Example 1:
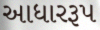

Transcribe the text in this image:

આધારરૂપ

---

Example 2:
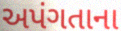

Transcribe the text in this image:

અપંગતાના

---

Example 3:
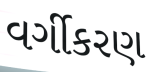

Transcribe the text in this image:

વર્ગીકરણ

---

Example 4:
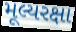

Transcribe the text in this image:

મૂલ્યરક્ષા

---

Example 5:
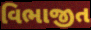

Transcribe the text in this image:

વિભાજીત